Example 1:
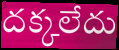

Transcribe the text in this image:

దక్కలేదు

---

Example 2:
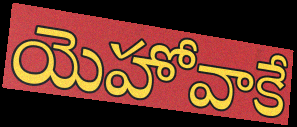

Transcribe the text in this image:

యెహోవాకే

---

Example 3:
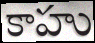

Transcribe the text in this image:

కాహు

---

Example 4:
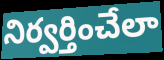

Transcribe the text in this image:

నిర్వర్తించేలా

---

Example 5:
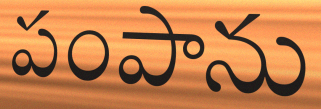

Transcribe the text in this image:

పంపాను